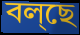
বল্ছে